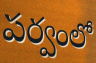
పర్వంలో